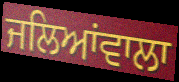
ਜਲਿਆਂਵਾਲਾ